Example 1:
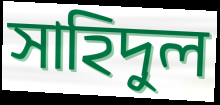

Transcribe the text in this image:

সাহিদুল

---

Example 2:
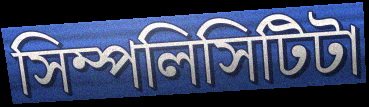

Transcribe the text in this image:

সিম্পলিসিটিটা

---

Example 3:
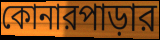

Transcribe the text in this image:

কোনারপাড়ার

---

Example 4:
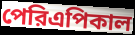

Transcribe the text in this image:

পেরিএপিকাল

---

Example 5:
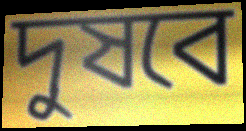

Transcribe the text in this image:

দুষবে